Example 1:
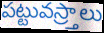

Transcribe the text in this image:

పట్టువస్ర్తాలు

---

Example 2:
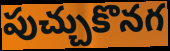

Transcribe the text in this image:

పుచ్చుకొనగ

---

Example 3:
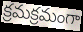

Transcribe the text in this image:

క్రమక్రమంగా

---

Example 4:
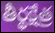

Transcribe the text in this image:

తీర్థక్షేత్ర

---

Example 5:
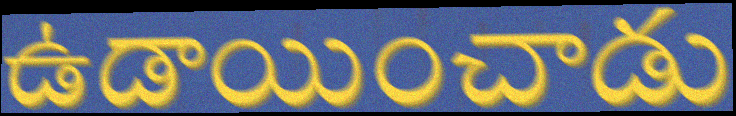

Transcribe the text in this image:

ఉడాయించాడు